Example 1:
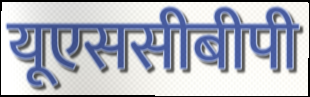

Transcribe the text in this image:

यूएससीबीपी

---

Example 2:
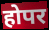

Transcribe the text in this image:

होपर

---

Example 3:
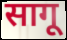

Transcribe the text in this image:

सागू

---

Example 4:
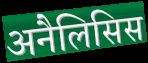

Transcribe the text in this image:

अनैलिसिस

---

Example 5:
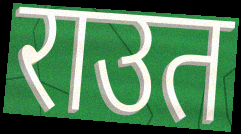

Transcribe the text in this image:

राउत